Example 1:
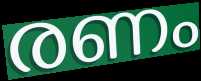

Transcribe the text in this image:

രണം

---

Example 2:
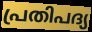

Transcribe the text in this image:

പ്രതിപദ്യ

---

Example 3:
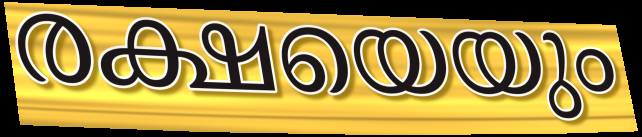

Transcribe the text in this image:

രക്ഷയെയും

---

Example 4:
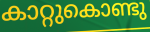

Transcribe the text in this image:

കാറ്റുകൊണ്ടു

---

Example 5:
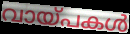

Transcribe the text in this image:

വായ്പകൾ